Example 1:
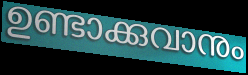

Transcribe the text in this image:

ഉണ്ടാക്കുവാനും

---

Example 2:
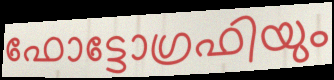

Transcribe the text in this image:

ഫോട്ടോഗ്രഫിയും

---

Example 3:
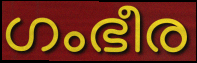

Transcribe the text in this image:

ഗംഭീര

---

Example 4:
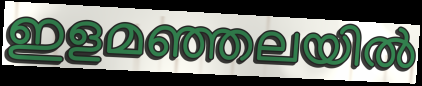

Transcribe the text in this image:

ഇളമഞ്ഞലയിൽ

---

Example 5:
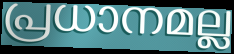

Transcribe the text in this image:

പ്രധാനമല്ല